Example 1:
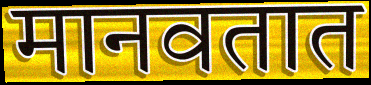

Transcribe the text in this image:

मानवतात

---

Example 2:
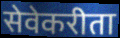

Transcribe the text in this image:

सेवेकरीता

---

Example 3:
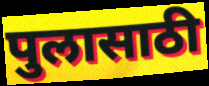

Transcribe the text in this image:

पुलासाठी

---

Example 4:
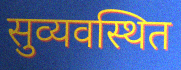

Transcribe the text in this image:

सुव्यवस्थित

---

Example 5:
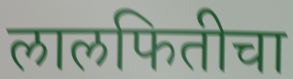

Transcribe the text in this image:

लालफितीचा